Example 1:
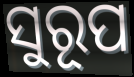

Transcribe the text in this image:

ସୁରୂପ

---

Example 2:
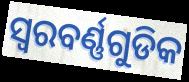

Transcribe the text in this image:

ସ୍ୱରବର୍ଣ୍ଣଗୁଡିକ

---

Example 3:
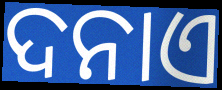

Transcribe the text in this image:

ଦନାଏ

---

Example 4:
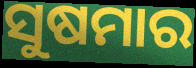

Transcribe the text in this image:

ସୁଷମାର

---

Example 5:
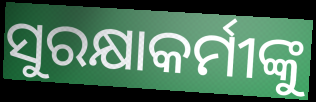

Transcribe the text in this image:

ସୁରକ୍ଷାକର୍ମୀଙ୍କୁ